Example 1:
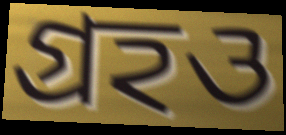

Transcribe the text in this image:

গ্রহও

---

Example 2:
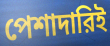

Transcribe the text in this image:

পেশাদারিই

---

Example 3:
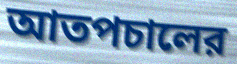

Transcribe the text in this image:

আতপচালের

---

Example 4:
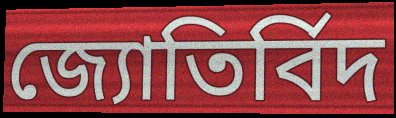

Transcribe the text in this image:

জ্যোতির্বিদ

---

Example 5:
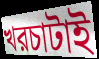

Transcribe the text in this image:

খরচাটাই